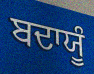
ਬਦਾਯੂੰ